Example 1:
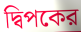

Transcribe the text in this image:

দ্বিপকের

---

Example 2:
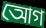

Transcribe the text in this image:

আেগ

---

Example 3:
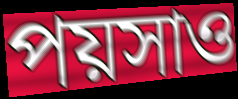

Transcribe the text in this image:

পয়সাও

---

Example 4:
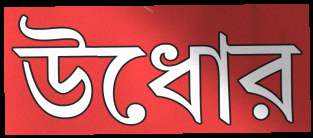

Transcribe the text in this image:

উধোর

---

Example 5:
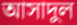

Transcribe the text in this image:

আসাদুল